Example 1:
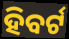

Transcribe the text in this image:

ହିବର୍ଟ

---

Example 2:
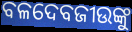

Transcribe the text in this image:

ବଳଦେବଜୀଉଙ୍କୁ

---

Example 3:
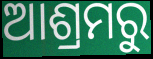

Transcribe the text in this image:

ଆଶ୍ରମରୁ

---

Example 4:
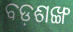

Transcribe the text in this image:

ବଡ଼ଶଙ୍ଖ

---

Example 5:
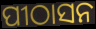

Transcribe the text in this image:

ପୀଠାସନ